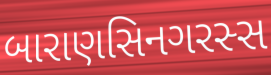
બારાણસિનગરસ્સ